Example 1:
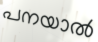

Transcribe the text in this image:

പനയാൽ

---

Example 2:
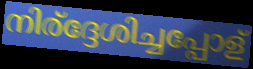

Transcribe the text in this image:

നിര്ദ്ദേശിച്ചപ്പോള്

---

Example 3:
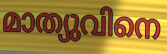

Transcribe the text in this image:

മാത്യുവിനെ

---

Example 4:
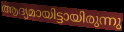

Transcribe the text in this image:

ആദ്യമായിട്ടായിരുന്നു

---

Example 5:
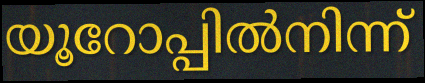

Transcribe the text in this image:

യൂറോപ്പിൽനിന്ന്